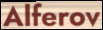
Alferov